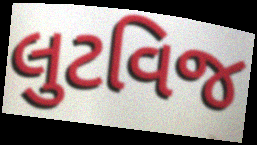
લુટવિજ